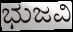
ಭುಜವಿ